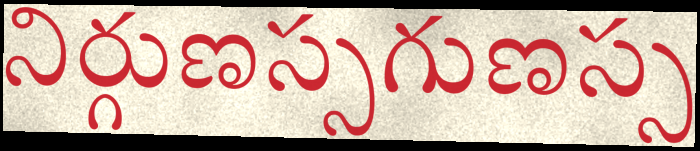
నిర్గుణస్సగుణస్స